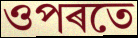
ওপৰতে